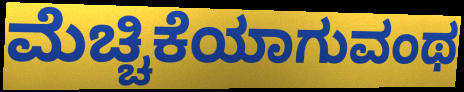
ಮೆಚ್ಚಿಕೆಯಾಗುವಂಥ